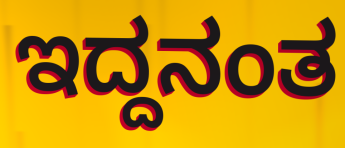
ಇದ್ದನಂತ